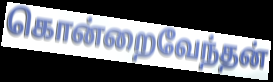
கொன்றைவேந்தன்